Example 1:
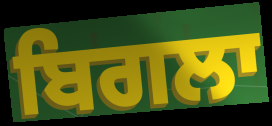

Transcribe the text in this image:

ਬਿਗਲਾ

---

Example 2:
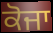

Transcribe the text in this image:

ਕੋਜਾ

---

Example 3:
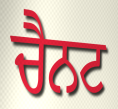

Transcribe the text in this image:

ਚੈਨਟ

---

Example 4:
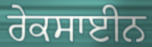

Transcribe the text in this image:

ਰੇਕਸਾਈਨ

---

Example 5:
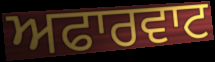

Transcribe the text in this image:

ਅਫਾਰਵਾਟ